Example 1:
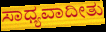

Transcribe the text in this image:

ಸಾಧ್ಯವಾದೀತು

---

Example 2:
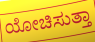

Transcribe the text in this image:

ಯೋಚಿಸುತ್ತಾ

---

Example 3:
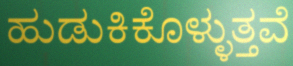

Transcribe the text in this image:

ಹುಡುಕಿಕೊಳ್ಳುತ್ತವೆ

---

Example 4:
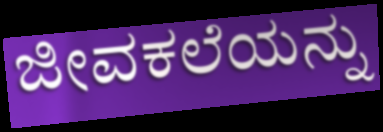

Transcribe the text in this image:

ಜೀವಕಲೆಯನ್ನು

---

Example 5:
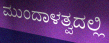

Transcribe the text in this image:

ಮುಂದಾಳತ್ವದಲ್ಲಿ